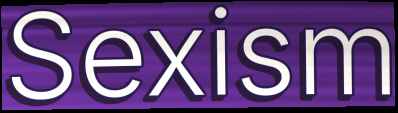
Sexism